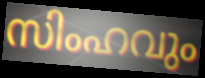
സിംഹവും